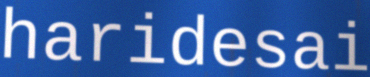
haridesai